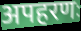
अपहरणः